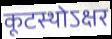
कूटस्थोऽक्षर